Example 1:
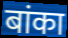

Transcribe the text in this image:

बांका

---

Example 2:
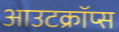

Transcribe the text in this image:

आउटक्रॉप्स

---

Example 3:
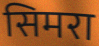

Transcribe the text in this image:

सिमरा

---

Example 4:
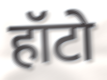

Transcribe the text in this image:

हॉटो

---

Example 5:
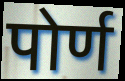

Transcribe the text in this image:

पोर्ण